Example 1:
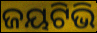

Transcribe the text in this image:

ଜୟଟିଭି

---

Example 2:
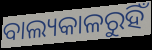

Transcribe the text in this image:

ବାଲ୍ୟକାଳରୁହିଁ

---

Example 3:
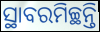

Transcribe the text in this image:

ସ୍ଥାବରମିଚ୍ଛନ୍ତି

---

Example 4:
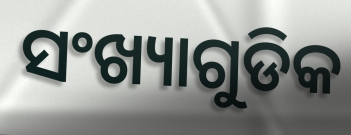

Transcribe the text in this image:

ସଂଖ୍ୟାଗୁଡିକ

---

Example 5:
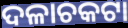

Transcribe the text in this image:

ଦଳାଚକଟା